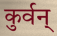
कुर्वन्